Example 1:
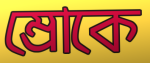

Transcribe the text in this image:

ম্রোকে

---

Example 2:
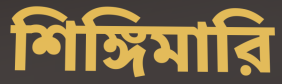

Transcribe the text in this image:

শিঙ্গিমারি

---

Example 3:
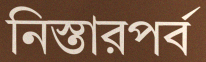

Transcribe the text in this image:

নিস্তারপর্ব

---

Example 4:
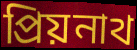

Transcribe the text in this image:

প্রিয়নাথ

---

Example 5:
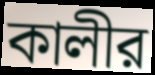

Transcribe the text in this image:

কালীর